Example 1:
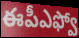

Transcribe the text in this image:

ఈపీఎఫ్వో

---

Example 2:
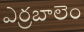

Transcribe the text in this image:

ఎర్రబాలెం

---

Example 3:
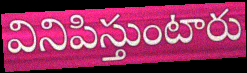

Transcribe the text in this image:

వినిపిస్తుంటారు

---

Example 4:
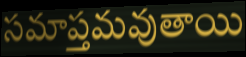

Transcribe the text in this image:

సమాప్తమవుతాయి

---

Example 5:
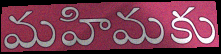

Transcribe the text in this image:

మహిమకు